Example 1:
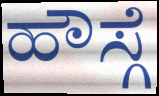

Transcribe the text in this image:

ಹೌಸ್ಗೆ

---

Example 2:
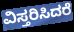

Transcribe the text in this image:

ವಿಸ್ತರಿಸಿದರೆ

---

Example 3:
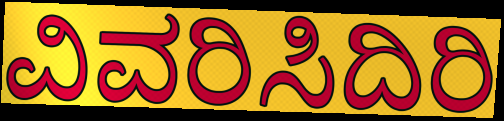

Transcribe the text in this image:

ವಿವರಿಸಿದಿರಿ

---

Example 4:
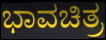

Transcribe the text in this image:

ಭಾವಚಿತ್ರ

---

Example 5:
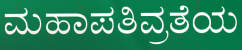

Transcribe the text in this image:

ಮಹಾಪತಿವ್ರತೆಯ